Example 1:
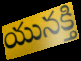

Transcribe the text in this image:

యునక్తి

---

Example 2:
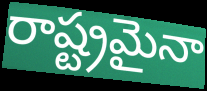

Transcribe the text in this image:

రాష్ట్రమైనా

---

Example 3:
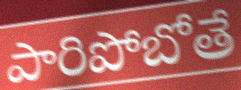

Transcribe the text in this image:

పారిపోబోతే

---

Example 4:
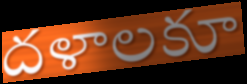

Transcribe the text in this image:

దళాలకూ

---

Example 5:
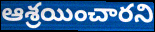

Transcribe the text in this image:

ఆశ్రయించారని